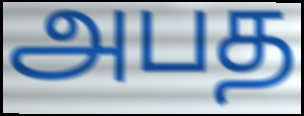
அபத